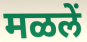
मळलें